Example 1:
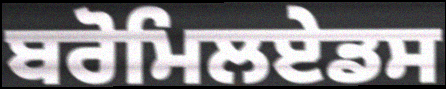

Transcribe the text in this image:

ਬਰੋਮਿਲਏਡਸ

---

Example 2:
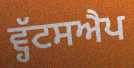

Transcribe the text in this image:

ਵ੍ਹੱਟਸਐਪ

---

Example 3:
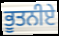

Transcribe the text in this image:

ਭੂਤਨੀਏ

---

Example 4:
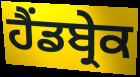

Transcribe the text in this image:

ਹੈਂਡਬ੍ਰੇਕ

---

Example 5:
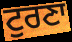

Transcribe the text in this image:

ਟੁਰਣਾ